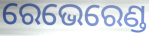
ରେଭେରେଣ୍ଡ